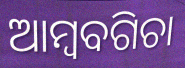
ଆମ୍ବବଗିଚା